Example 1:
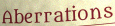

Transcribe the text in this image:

Aberrations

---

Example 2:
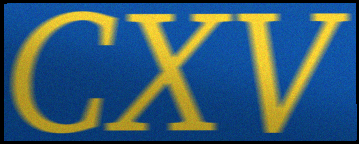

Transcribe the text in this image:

CXV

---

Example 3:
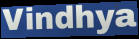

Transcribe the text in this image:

Vindhya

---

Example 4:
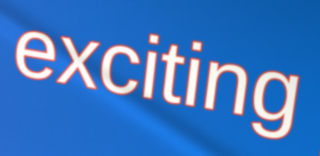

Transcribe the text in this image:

exciting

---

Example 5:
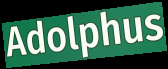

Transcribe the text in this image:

Adolphus